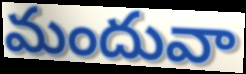
మందువా